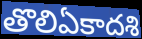
తొలిఏకాదశి